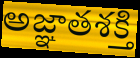
అజ్ఞాతశక్తి